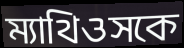
ম্যাথিওসকে